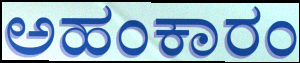
ಅಹಂಕಾರಂ